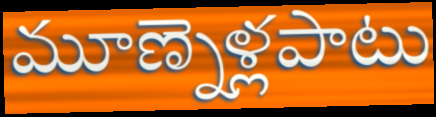
మూణ్నెళ్లపాటు